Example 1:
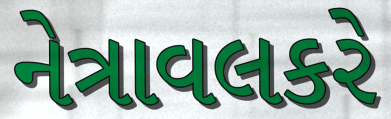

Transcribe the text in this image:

નેત્રાવલકરે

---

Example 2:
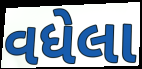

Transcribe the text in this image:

વધેલા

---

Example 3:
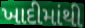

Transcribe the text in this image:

ખાદીમાંથી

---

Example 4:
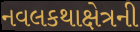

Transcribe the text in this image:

નવલકથાક્ષેત્રની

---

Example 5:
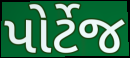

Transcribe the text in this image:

પોર્ટેજ